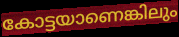
കോട്ടയാണെങ്കിലും